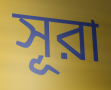
সূরা